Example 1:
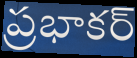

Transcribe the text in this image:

ప్రభాకర్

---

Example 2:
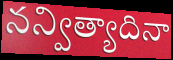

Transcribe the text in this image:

నన్విత్యాదినా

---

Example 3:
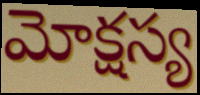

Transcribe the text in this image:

మోక్షస్య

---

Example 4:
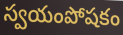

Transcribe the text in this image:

స్వయంపోషకం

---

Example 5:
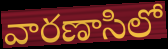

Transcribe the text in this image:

వారణాసిలో